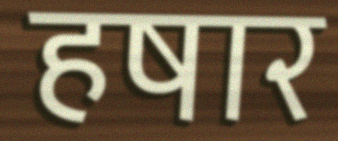
हषार